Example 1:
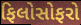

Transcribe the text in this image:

ફિલોસોફરો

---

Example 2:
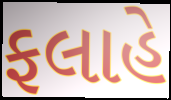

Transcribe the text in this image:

ફલાહે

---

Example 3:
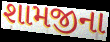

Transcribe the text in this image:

શામજીના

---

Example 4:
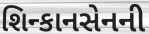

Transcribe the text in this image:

શિન્કાનસેનની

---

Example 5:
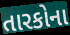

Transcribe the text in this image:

તારકોના